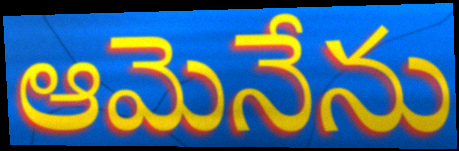
ఆమెనేను